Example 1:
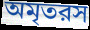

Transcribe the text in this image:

অমৃতরস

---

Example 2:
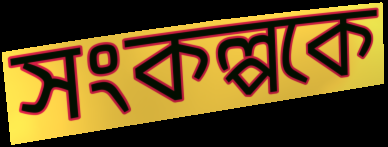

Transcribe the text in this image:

সংকল্পকে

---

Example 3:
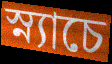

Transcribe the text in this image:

স্ন্যাচে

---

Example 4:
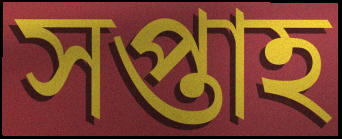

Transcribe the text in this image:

সপ্তাহ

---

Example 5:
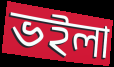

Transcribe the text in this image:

ভইলা